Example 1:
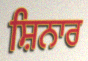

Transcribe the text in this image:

ਸ਼ਿਨਾਰ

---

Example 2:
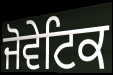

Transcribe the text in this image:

ਜੋਵੇਟਿਕ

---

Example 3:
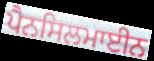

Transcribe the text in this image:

ਪੈਨਸਿਲਮਾਈਨ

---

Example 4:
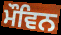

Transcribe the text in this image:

ਮੌਵਿਨ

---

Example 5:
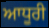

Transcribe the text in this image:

ਆਧੂਰੀ